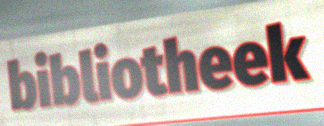
bibliotheek